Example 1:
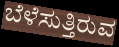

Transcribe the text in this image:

ಬೆಳೆಸುತ್ತಿರುವ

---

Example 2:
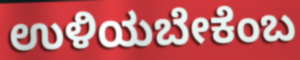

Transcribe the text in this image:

ಉಳಿಯಬೇಕೆಂಬ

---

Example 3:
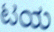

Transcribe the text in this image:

ಟಯ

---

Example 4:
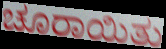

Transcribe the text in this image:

ಚೂರಾಯಿತು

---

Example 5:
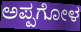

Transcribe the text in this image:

ಅಪ್ಪಗೋಳ